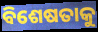
ବିଶେଷତାକୁ